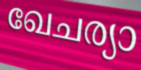
ഖേചര്യാ